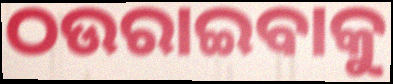
ଠଉରାଇବାକୁ